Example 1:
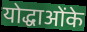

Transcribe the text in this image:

योद्धाओंके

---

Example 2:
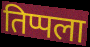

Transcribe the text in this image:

तिप्पला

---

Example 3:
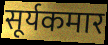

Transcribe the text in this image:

सूर्यकमार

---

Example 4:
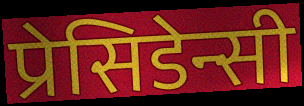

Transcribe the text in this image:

प्रेसिडेन्सी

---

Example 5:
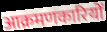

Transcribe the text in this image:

आक्रमणकारियों